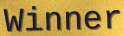
Winner